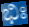
ಭಿಃ